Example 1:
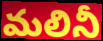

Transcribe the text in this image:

మలినీ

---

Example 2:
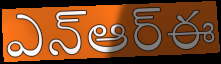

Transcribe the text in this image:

ఎన్ఆర్ఈ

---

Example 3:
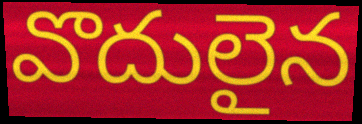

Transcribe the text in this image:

వొదులైన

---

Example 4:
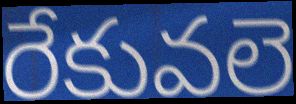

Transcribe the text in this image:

రేకువలె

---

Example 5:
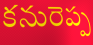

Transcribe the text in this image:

కనురెప్ప